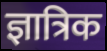
ज्ञात्रिक